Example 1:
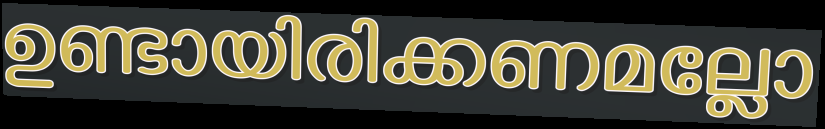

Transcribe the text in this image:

ഉണ്ടായിരിക്കണമല്ലോ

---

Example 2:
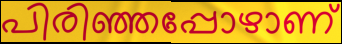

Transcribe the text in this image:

പിരിഞ്ഞപ്പോഴാണ്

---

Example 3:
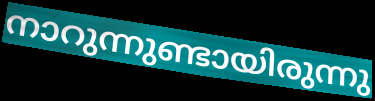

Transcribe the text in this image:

നാറുന്നുണ്ടായിരുന്നു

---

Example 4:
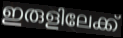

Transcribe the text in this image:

ഇരുളിലേക്ക്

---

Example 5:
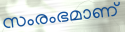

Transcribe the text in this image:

സംരംഭമാണ്